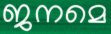
ജനമെ